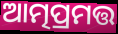
ଆତ୍ମପ୍ରମତ୍ତ